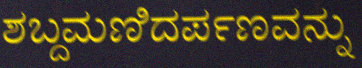
ಶಬ್ದಮಣಿದರ್ಪಣವನ್ನು